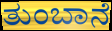
ತುಂಬಾನೆ